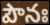
పౌనః